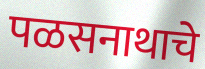
पळसनाथाचे